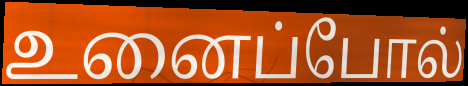
உனைப்போல்